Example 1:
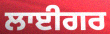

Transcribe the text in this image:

ਲਾਈਗਰ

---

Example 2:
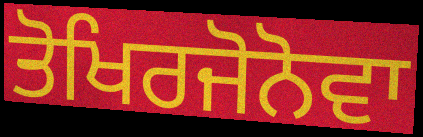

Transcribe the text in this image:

ਤੋਖਿਰਜੋਨੋਵਾ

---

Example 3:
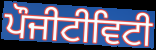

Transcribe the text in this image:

ਪੌਜੀਟੀਵਿਟੀ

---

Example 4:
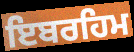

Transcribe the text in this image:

ਇਬਰਹਿਮ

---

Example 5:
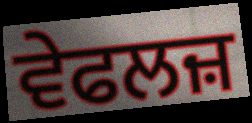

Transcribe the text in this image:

ਵੇਫਲਜ਼